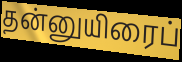
தன்னுயிரைப்